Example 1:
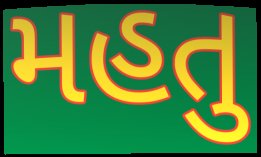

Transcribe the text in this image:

મહતુ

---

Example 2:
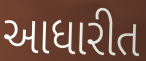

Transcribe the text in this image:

આધારીત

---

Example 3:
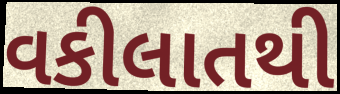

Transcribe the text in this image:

વકીલાતથી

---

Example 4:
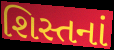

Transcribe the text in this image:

શિસ્તનાં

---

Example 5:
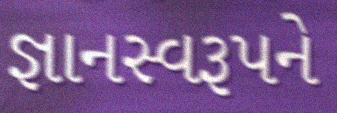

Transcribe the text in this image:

જ્ઞાનસ્વરૂપને